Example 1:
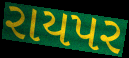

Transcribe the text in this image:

રાયપર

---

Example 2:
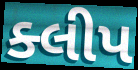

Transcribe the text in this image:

ક્લીપ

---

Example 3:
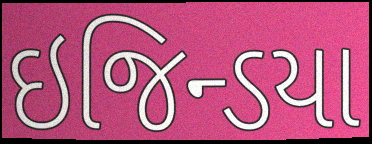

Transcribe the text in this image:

ઇજિન્ડયા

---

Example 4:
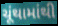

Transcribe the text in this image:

ચૂંથામાંથી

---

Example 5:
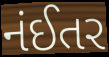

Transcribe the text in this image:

નંઈતર